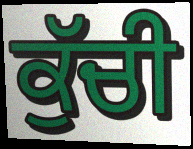
ਕੁੱਚੀ